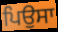
ਪਿਉਸਾ